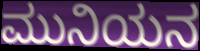
ಮುನಿಯನ